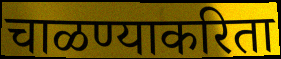
चाळण्याकरिता